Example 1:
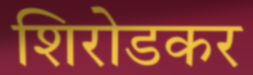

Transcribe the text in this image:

शिरोडकर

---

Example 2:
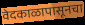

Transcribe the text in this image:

वेदकाळापासूनचा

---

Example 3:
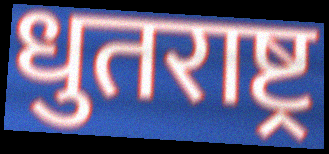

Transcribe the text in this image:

धुतराष्ट्र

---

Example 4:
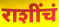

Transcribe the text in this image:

राशींचं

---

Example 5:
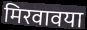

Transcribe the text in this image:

मिरवावया